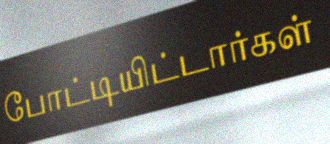
போட்டியிட்டார்கள்